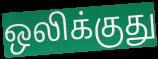
ஒலிக்குது